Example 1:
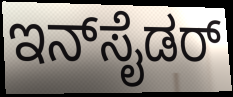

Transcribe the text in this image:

ಇನ್‌ಸೈಡರ್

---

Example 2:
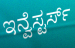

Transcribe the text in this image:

ಇನ್ವೆಸ್ಟರ್ಸ್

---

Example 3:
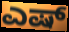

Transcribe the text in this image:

ಎಷ್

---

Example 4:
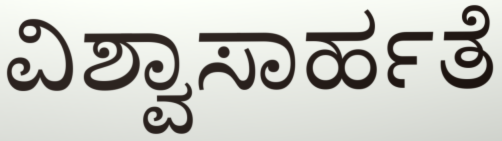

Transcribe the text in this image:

ವಿಶ್ವಾಸಾರ್ಹತೆ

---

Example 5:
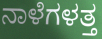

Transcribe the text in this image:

ನಾಳೆಗಳತ್ತ